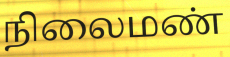
நிலைமண்